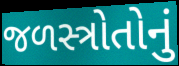
જળસ્ત્રોતોનું